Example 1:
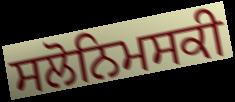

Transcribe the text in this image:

ਸਲੋਨਿਮਸਕੀ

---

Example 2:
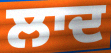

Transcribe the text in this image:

ਲਾਦ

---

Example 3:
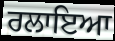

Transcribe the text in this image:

ਰਲਾਇਆ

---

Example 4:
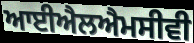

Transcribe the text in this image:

ਆਈਐਲਐਮਸੀਵੀ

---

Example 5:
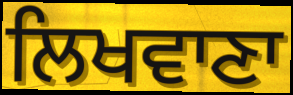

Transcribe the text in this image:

ਲਿਖਵਾਣਾ